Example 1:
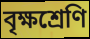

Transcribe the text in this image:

বৃক্ষশ্রেণি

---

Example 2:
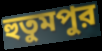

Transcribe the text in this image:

হুতুমপুর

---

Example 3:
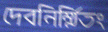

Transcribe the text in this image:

দেবনির্ম্মিতং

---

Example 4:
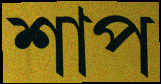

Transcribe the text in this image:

শাপ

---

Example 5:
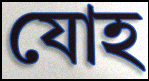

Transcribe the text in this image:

যোহ